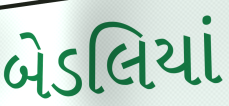
બેડલિયાં